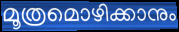
മൂത്രമൊഴിക്കാനും